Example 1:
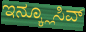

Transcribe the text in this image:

ಇನ್ಕ್ಲೂಸಿವ್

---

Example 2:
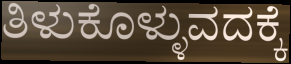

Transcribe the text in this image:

ತಿಳುಕೊಳ್ಳುವದಕ್ಕೆ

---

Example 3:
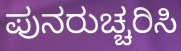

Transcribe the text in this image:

ಪುನರುಚ್ಚರಿಸಿ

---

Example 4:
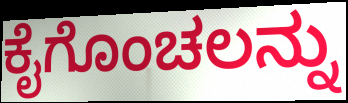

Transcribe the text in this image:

ಕೈಗೊಂಚಲನ್ನು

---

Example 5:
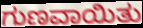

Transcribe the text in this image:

ಗುಣವಾಯಿತು